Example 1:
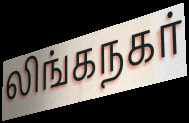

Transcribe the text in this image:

லிங்கநகர்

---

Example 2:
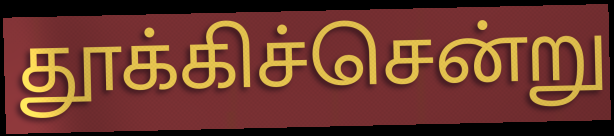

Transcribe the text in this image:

தூக்கிச்சென்று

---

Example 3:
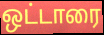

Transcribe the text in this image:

ஒட்டாரை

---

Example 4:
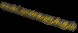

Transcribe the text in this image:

எலக்ட்ரான்களுக்கும்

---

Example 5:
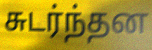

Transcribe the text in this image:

சுடர்ந்தன